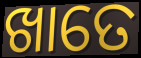
ଖାତେ